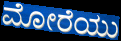
ಮೋರೆಯು